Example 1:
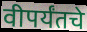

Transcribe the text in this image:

वीपर्यंतचे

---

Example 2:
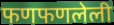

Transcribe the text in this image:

फणफणलेली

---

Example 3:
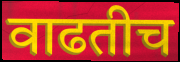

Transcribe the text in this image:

वाढतीच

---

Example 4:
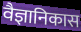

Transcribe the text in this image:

वैज्ञानिकास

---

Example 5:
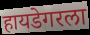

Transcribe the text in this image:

हायडेगरला